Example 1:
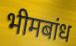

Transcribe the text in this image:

भीमबांध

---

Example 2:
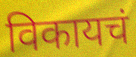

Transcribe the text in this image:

विकायचं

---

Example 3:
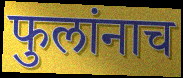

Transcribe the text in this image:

फुलांनाच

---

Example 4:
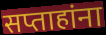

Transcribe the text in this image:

सप्ताहांना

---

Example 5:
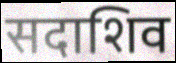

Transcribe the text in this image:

सदाशिव